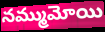
నమ్ముమోయి